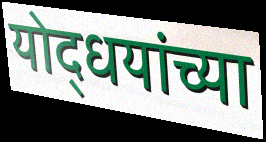
योद्धयांच्या